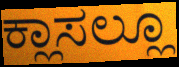
ಕ್ಲಾಸಲ್ಲೂ